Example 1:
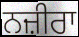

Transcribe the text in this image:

ਨਜ਼ੀਰਾ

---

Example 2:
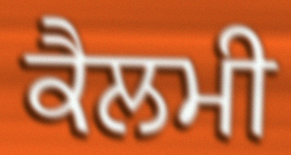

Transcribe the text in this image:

ਕੈਲਮੀ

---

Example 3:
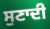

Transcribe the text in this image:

ਸੁਣਾਦੀ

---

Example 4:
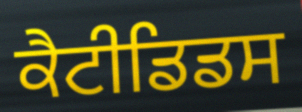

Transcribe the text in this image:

ਕੈਟੀਡਿਡਸ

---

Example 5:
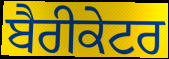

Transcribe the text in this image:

ਬੈਰੀਕੇਟਰ